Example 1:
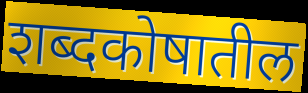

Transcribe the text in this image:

शब्दकोषातील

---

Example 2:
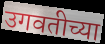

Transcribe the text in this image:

उगवतीच्या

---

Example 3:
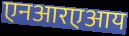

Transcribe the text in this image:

एनआरएआय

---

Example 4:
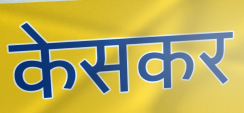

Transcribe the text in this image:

केसकर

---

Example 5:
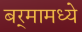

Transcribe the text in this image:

बर्मामध्ये